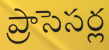
ప్రాసెసర్ల